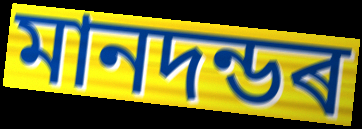
মানদন্ডৰ